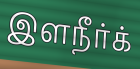
இளநீர்க்